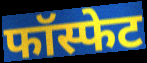
फॉस्फेट